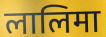
लालिमा